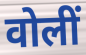
वोलीं